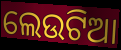
ଲେଉଟିଆ